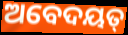
ଅବେଦୟତ୍